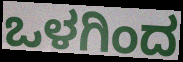
ಒಳಗಿಂದ